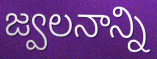
జ్వలనాన్ని